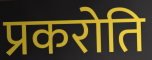
प्रकरोति